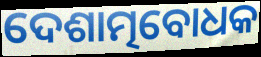
ଦେଶାତ୍ମବୋଧକ